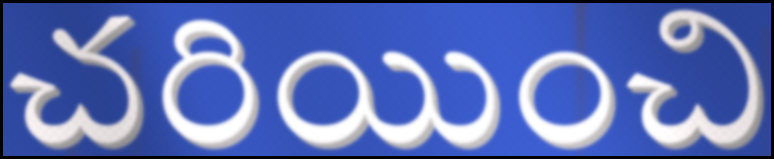
చరియించి